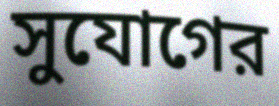
সুযোগের